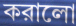
করালো